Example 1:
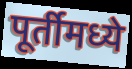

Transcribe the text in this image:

पूर्तीमध्ये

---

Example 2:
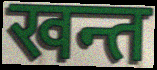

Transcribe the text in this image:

खन्त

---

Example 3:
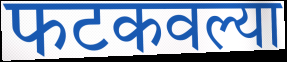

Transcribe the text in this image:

फटकवल्या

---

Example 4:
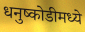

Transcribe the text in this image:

धनुष्कोडीमध्ये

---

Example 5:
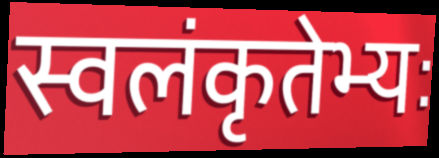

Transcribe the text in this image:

स्वलंकृतेभ्यः